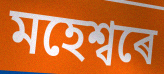
মহেশ্বৰে